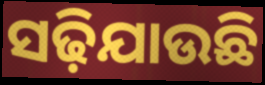
ସଢ଼ିଯାଉଛି